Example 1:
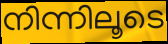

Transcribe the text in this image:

നിന്നിലൂടെ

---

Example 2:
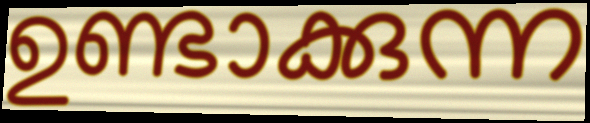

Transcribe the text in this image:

ഉണ്ടാക്കുന്ന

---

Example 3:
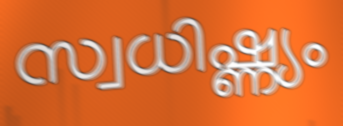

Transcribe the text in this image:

സ്വധിഷ്ണ്യം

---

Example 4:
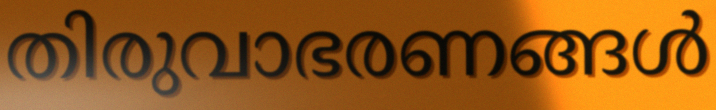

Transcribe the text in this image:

തിരുവാഭരണങ്ങൾ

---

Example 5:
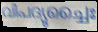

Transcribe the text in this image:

വിപദ്യുച്ചൈഃ